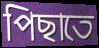
পিছাতে